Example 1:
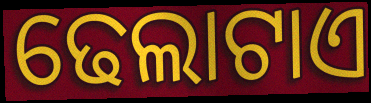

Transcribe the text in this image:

ଢେଲାଟାଏ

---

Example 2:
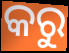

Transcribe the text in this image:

କରୁ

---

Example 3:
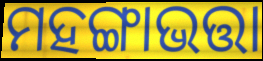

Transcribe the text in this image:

ମହଙ୍ଗାଭତ୍ତା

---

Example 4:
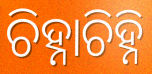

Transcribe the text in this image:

ଚିହ୍ନାଚିହ୍ନି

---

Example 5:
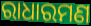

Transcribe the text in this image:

ରାଧାରମଣ